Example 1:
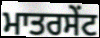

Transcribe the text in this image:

ਮਾਤਰਸੇਂਟ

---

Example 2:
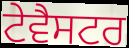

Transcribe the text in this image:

ਟੇਵੈਸਟਰ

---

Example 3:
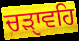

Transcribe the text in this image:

ਚੜੑਾਵਹਿ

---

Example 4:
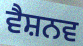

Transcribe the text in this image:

ਵੈਸ਼ਨਵ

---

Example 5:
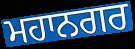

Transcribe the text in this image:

ਮਹਾਨਗਰ